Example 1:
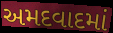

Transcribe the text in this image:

અમદવાદમાં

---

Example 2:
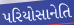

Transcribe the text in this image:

પરિયોસાનેતિ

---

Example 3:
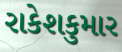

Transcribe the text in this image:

રાકેશકુમાર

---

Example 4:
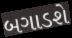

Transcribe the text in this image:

બગાડશે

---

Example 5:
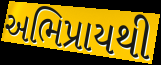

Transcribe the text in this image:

અભિપ્રાયથી